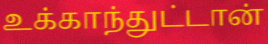
உக்காந்துட்டான்